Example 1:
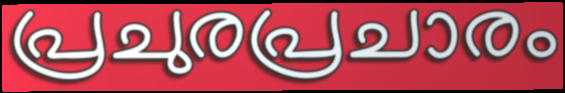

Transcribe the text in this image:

പ്രചുരപ്രചാരം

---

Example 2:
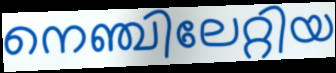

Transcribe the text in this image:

നെഞ്ചിലേറ്റിയ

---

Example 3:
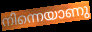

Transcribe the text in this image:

നിന്നെയാണു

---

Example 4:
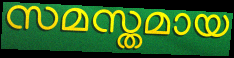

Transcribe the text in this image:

സമസ്തമായ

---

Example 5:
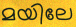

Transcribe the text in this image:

മയിലേ